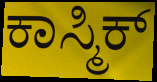
ಕಾಸ್ಮಿಕ್